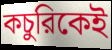
কচুরিকেই